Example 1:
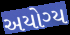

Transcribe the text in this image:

અયોગ્ય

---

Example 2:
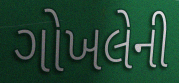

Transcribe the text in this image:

ગોખલેની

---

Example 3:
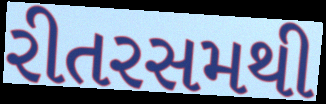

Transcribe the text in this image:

રીતરસમથી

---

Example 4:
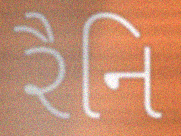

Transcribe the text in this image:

રૈનિ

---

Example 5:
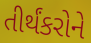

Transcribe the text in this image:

તીર્થંકરોને